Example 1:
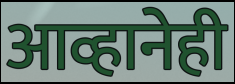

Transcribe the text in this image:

आव्हानेही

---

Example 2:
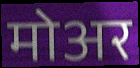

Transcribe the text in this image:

मोअर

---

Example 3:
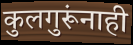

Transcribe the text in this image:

कुलगुरूंनाही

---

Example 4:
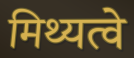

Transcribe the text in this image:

मिथ्यत्वे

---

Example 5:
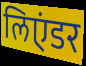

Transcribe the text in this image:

लिएंडर